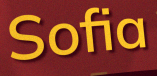
Sofia